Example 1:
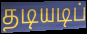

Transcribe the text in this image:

தடியடிப்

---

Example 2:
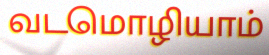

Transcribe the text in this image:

வடமொழியாம்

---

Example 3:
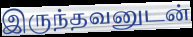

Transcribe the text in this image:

இருந்தவனுடன்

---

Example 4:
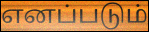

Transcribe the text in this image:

எனப்படும்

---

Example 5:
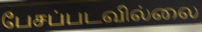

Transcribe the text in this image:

பேசப்படவில்லை